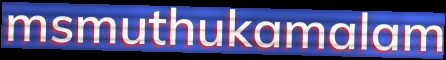
msmuthukamalam